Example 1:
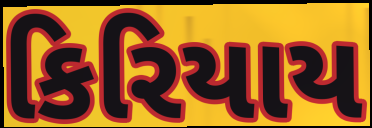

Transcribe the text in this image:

કિરિયાય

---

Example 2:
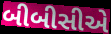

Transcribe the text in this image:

બીબીસીએ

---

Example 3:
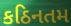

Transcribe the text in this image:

કઠિનતમ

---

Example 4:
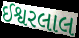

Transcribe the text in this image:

ઈશ્વરલાલ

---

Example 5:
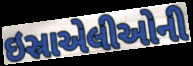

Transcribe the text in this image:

ઇસ્રાએલીઓની